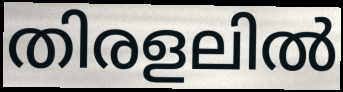
തിരളലിൽ